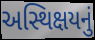
અસ્થિક્ષયનું